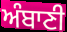
ਅੰਬਾਣੀ